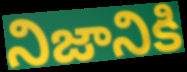
నిజానికి